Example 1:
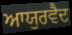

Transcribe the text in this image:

ਆਯੁਰਵੈਦ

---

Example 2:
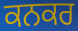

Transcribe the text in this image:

ਕਨਕਰ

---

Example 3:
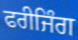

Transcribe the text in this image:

ਫਰੀਜਿੰਗ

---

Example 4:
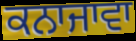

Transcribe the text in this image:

ਕਨਾਜਾਵਾ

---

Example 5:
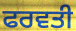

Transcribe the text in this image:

ਫਰਵਤੀ